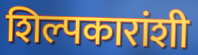
शिल्पकारांशी